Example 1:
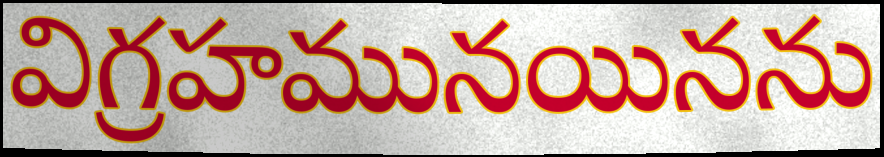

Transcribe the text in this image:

విగ్రహమునయినను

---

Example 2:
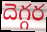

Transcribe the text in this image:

దెగ్గర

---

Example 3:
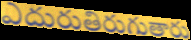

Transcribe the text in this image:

ఎదురుతిరుగుతారు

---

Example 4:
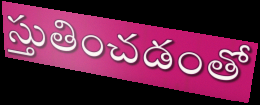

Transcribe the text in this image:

స్తుతించడంతో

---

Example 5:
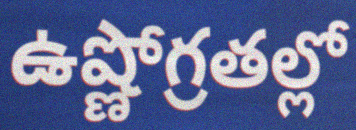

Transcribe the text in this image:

ఉష్ణోగ్రతల్లో